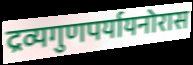
द्रव्यगुणपर्यायनोरास